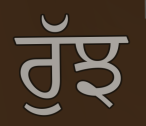
ਰੁੱਝ